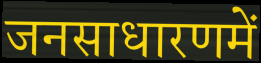
जनसाधारणमें